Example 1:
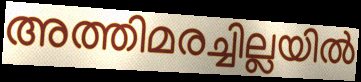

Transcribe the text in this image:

അത്തിമരച്ചില്ലയിൽ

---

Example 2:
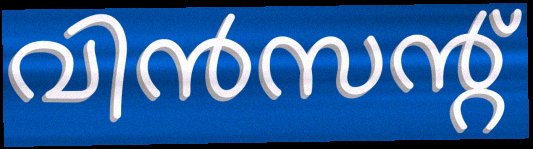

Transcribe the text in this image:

വിൻസന്റ്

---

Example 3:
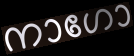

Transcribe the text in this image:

നാഗോ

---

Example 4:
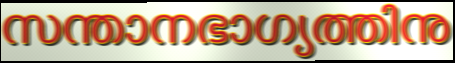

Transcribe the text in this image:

സന്താനഭാഗ്യത്തിനു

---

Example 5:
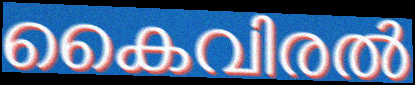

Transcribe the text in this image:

കൈവിരൽ